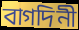
বাগদিনী